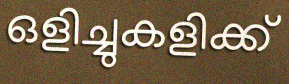
ഒളിച്ചുകളിക്ക്